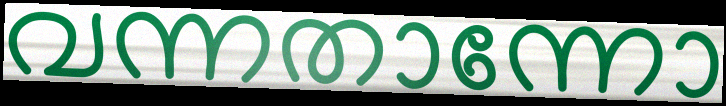
വന്നതാന്നോ